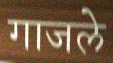
गाजले